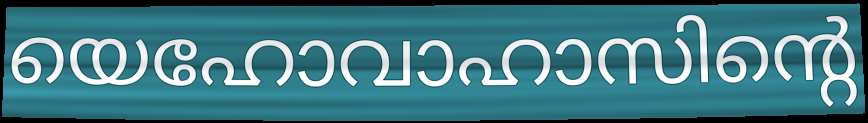
യെഹോവാഹാസിന്റെ